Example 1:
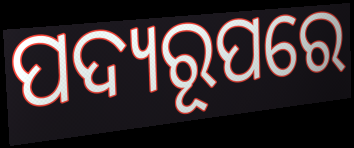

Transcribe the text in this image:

ପଦ୍ୟରୂପରେ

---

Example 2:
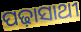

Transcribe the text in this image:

ପଢ଼ାସାଥୀ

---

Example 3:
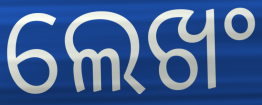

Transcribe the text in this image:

ଲେଖଂ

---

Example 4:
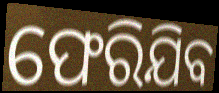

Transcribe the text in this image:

ଫେରିଯିବ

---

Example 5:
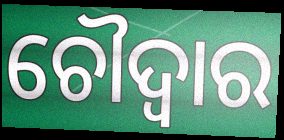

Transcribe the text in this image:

ଚୌଦ୍ବାର